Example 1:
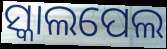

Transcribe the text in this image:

ସ୍କାଲପେଲ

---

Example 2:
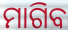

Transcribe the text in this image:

ମାଗିବ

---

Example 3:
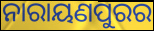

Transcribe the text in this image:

ନାରାୟଣପୁରର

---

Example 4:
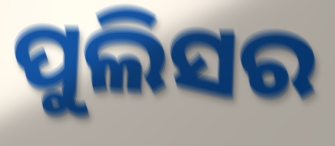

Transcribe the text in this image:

ପୁଲିସର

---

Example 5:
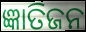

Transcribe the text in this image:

ଜ୍ଞାତିଜନ